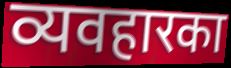
व्यवहारका